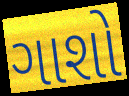
ગાશો